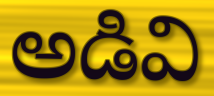
అడివి